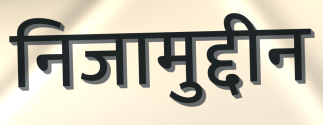
निजामुद्दीन